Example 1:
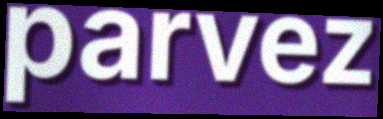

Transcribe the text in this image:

parvez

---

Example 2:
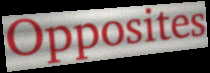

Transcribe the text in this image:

Opposites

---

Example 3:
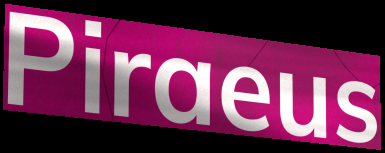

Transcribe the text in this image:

Piraeus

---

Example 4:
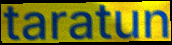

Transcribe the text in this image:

taratun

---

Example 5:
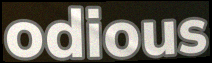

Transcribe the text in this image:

odious